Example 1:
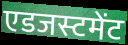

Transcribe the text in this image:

एडजस्टमेंट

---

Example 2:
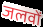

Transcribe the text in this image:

जलवों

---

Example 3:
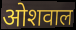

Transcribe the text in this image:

ओशवाल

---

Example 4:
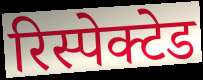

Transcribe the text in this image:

रिस्पेक्टेड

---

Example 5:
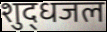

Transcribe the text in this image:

शुद्धजल